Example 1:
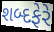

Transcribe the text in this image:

શબ્દફેરે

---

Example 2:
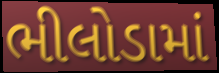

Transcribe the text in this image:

ભીલોડામાં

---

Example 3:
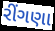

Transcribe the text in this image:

રીંગણા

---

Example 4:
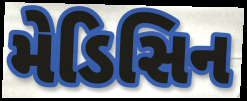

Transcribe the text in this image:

મેડિસિન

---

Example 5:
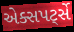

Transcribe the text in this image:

એક્સપર્ટ્સે